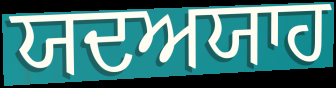
ਯਦਅਯਾਹ